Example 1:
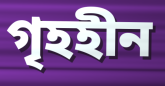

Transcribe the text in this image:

গৃহহীন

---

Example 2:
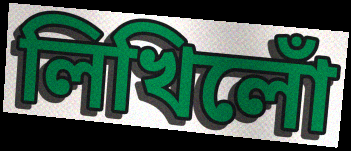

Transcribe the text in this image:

লিখিলোঁ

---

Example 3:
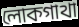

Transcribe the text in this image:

লোকগাথা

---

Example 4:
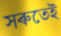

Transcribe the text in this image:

সৰুতেই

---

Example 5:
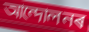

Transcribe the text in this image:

আন্দোলনৰ